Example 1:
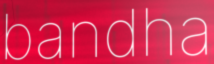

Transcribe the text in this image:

bandha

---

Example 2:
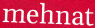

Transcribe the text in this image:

mehnat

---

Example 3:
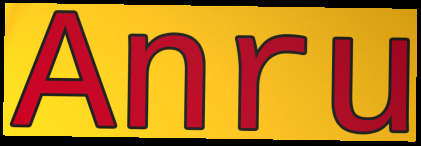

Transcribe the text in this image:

Anru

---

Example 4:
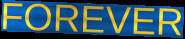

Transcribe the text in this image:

FOREVER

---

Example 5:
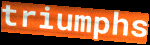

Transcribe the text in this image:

triumphs